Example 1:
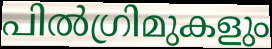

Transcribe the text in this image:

പിൽഗ്രിമുകളും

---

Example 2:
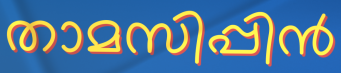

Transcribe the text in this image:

താമസിപ്പിൻ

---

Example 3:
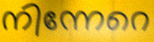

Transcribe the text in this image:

നിന്നേറെ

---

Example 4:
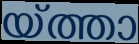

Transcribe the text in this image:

യ്ത്താ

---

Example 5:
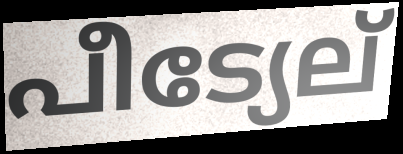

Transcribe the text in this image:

പീട്യേല്